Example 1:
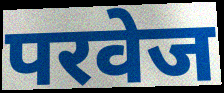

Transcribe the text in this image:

परवेज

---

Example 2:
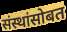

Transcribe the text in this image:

संस्थांसोबत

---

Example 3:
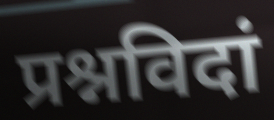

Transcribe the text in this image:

प्रश्नविदां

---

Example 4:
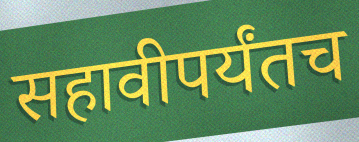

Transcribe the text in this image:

सहावीपर्यंतच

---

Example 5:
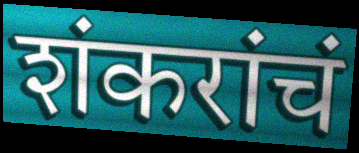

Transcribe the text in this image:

शंकरांचं